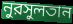
নুরসুলতান